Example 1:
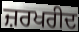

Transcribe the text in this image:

ਜ਼ਰਖਰੀਦ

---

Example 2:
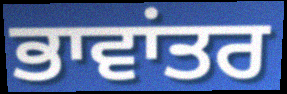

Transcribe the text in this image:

ਭਾਵਾਂਤਰ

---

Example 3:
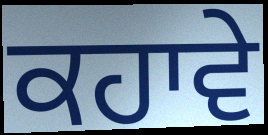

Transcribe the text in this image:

ਕਹਾਵੇ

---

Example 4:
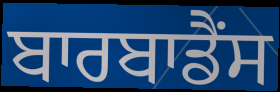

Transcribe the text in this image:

ਬਾਰਬਾਡੈਂਸ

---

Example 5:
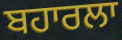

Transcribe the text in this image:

ਬਹਾਰਲਾ